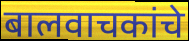
बालवाचकांचे